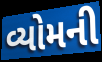
વ્યોમની